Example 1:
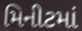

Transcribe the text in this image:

મિનીટમાં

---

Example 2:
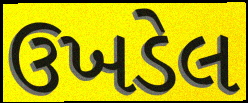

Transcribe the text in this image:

ઉખડેલ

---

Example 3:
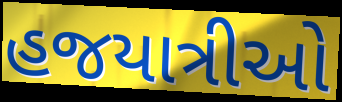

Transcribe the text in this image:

હજયાત્રીઓ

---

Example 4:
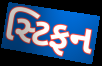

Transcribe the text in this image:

સ્ટિફન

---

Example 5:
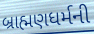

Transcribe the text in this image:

બ્રાહ્મણધર્મની